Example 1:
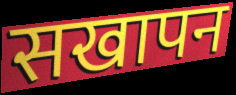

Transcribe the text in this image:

सखापन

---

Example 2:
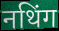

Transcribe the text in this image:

नथिंग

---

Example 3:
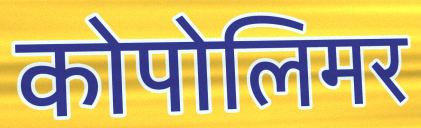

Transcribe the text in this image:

कोपोलिमर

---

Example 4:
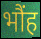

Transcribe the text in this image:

भौंह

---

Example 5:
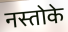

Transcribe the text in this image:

नस्तोके